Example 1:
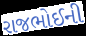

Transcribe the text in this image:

રાજભોઈની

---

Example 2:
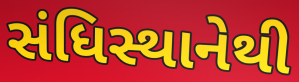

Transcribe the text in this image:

સંધિસ્થાનેથી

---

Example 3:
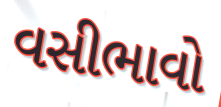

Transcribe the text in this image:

વસીભાવો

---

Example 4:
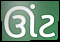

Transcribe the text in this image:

ઊંટ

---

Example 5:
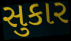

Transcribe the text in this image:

સુકાર